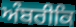
ਅੰਬਰੀਕਿ